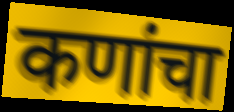
कणांचा